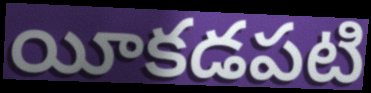
యీకడపటి